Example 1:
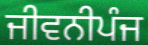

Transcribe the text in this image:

ਜੀਵਨੀਪੰਜ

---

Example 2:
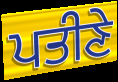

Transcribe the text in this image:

ਪਤੀਣੇ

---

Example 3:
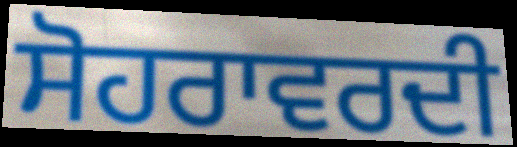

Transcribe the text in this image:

ਸੋਹਰਾਵਰਦੀ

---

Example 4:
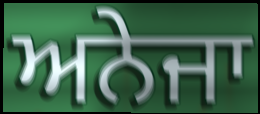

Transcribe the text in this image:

ਅਨੇਜਾ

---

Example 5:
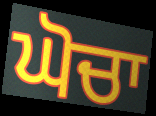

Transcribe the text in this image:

ਘੋਚਾ